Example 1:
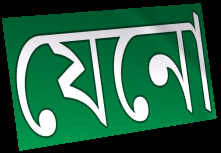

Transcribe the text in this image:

যেনো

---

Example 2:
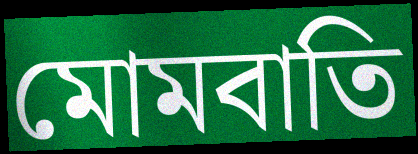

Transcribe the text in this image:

মোমবাতি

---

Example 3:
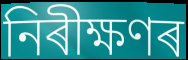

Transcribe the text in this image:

নিৰীক্ষণৰ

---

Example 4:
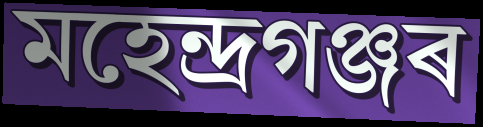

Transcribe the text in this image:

মহেন্দ্ৰগঞ্জৰ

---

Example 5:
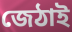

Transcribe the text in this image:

জেঠাই